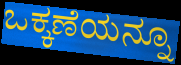
ಒಕ್ಕಣೆಯನ್ನೂ